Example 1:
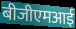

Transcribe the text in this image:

बीजीएमआई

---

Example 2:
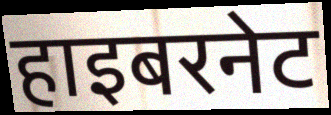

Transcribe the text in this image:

हाइबरनेट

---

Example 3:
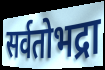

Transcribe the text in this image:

सर्वतोभद्रा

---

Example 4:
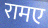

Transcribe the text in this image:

रामए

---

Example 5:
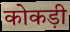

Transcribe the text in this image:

कोकड़ी